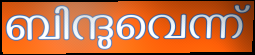
ബിന്ദുവെന്ന്